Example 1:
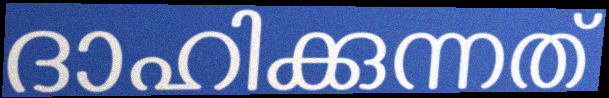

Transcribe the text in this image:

ദാഹിക്കുന്നത്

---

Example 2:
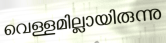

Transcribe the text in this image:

വെള്ളമില്ലായിരുന്നു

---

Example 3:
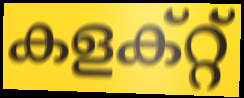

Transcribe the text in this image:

കളക്റ്റ്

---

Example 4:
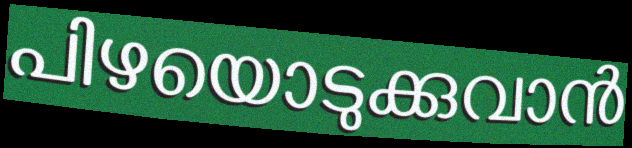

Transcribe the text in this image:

പിഴയൊടുക്കുവാൻ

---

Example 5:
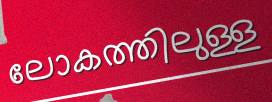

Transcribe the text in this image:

ലോകത്തിലുള്ള